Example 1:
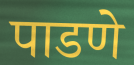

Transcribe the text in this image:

पाडणे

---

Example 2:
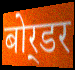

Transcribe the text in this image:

बोर्डर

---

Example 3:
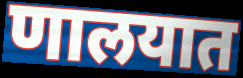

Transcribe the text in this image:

णालयात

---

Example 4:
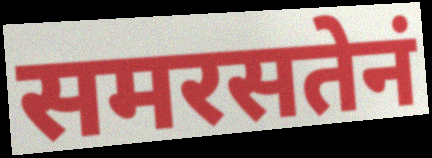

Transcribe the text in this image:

समरसतेनं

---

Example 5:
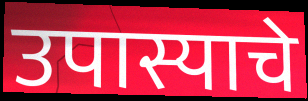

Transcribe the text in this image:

उपास्याचे